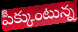
పీక్కుంటున్న